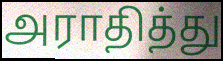
அராதித்து